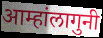
आम्हांलागुनी